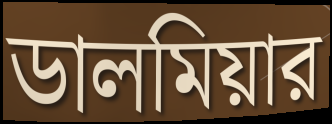
ডালমিয়ার